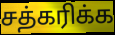
சத்கரிக்க